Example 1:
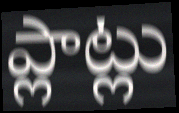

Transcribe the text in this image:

ప్లాట్లు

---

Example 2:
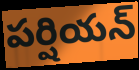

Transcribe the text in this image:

పర్షియన్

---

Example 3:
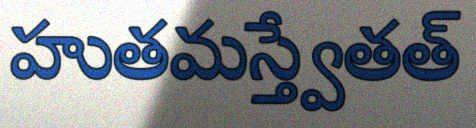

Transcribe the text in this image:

హుతమస్త్వేతత్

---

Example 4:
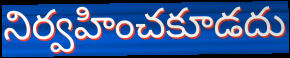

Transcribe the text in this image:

నిర్వహించకూడదు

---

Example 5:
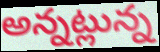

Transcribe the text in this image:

అన్నట్లున్న